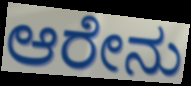
ಆರೇನು